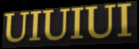
UIUIUI